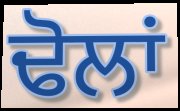
ਢੋਲਾਂ